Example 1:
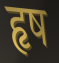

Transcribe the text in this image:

हृष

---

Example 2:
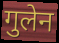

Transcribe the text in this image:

गुलेन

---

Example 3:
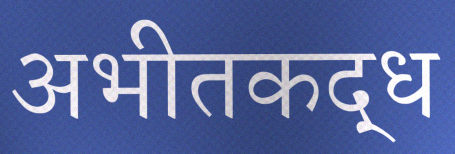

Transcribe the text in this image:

अभीतकद्ध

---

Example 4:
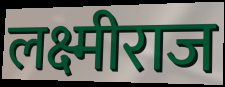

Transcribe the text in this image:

लक्ष्मीराज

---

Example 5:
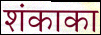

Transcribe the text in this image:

शंकाका